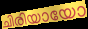
ചിരിയായോ